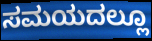
ಸಮಯದಲ್ಲೂ